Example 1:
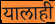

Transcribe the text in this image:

यालाही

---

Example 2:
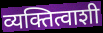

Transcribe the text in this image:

व्यक्तित्वाशी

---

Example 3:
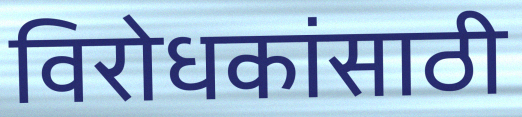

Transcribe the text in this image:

विरोधकांसाठी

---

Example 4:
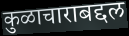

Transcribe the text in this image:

कुळाचाराबद्दल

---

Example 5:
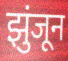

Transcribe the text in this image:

झुंजून